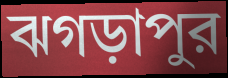
ঝগড়াপুর